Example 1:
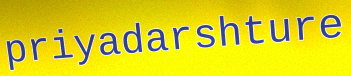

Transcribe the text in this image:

priyadarshture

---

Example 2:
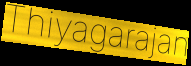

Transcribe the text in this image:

Thiyagarajan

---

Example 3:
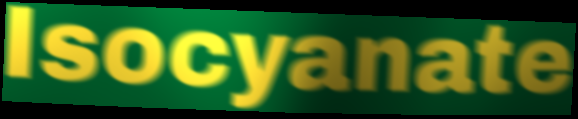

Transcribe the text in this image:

Isocyanate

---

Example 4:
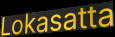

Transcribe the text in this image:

Lokasatta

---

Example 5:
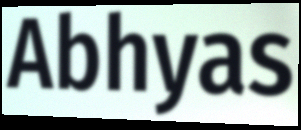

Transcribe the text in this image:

Abhyas